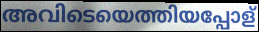
അവിടെയെത്തിയപ്പോള്